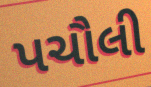
પચૌલી